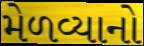
મેળવ્યાનો